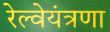
रेल्वेयंत्रणा